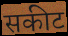
सकीट